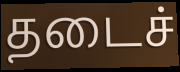
தடைச்